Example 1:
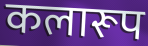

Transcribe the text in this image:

कलारूप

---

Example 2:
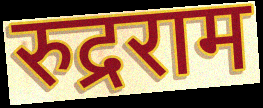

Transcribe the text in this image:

रुद्रराम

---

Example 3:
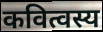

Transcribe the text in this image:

कवित्वस्य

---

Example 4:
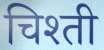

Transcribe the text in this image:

चिश्ती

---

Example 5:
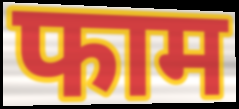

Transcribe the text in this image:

फाम